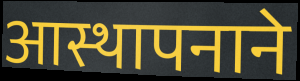
आस्थापनाने